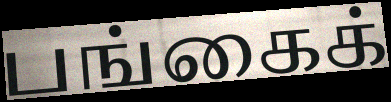
பங்கைக்